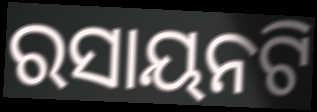
ରସାୟନଟି